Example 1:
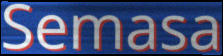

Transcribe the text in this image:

Semasa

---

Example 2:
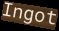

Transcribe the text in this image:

Ingot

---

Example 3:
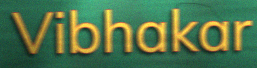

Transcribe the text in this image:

Vibhakar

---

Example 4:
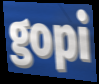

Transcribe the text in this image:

gopi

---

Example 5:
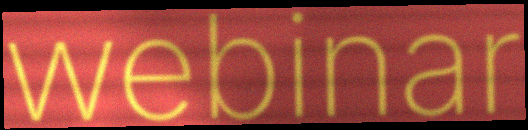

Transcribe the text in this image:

webinar